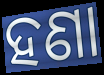
ହଣା